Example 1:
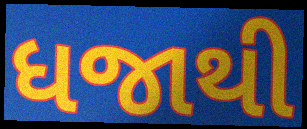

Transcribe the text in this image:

ધજાથી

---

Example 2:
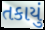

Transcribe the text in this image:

તકાયું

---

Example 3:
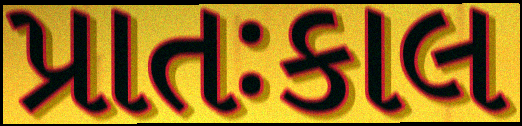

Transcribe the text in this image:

પ્રાતઃકાલ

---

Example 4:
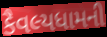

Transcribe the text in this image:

કૈવલ્યધામની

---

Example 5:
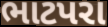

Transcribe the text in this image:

ભાટપરા